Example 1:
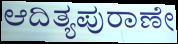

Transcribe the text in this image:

ಆದಿತ್ಯಪುರಾಣೇ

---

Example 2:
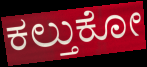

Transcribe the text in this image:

ಕಲ್ತುಕೋ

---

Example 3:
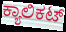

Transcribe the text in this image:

ಕ್ಯಾಲಿಕಟ್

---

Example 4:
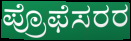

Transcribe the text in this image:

ಪ್ರೊಫೆಸರರ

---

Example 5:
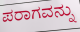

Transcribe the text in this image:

ಪರಾಗವನ್ನು